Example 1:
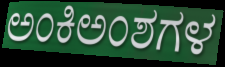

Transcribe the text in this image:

ಅಂಕಿಅಂಶಗಳ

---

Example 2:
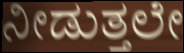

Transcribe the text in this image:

ನೀಡುತ್ತಲೇ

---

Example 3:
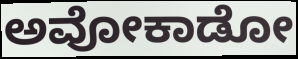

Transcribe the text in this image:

ಅವೋಕಾಡೋ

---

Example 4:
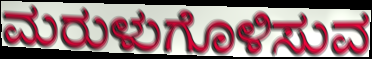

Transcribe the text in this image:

ಮರುಳುಗೊಳಿಸುವ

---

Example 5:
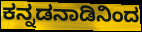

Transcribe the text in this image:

ಕನ್ನಡನಾಡಿನಿಂದ